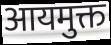
आयमुक्त